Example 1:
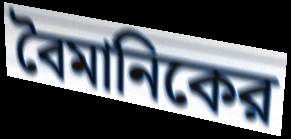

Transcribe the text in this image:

বৈমানিকের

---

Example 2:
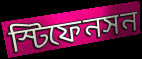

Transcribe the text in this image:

স্টিফেনসন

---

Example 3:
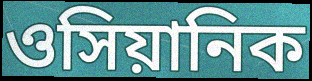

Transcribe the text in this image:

ওসিয়ানিক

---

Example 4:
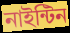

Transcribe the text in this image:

নাইন্টিন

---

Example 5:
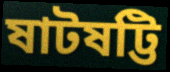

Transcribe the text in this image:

ষাটষট্টি